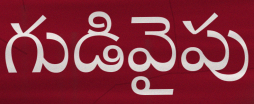
గుడివైపు